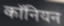
कॉनियन